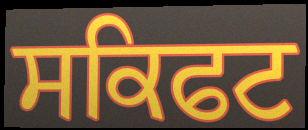
ਸਕਿਫਟ